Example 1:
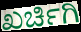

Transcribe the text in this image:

ಖರ್ಚಿಗಿ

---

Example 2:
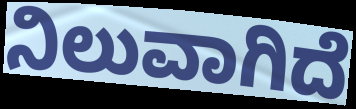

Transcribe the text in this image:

ನಿಲುವಾಗಿದೆ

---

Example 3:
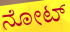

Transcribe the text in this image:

ನೋಟ್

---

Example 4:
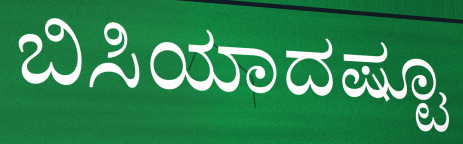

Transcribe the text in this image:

ಬಿಸಿಯಾದಷ್ಟೂ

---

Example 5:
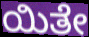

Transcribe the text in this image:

ಯಿತೇ